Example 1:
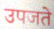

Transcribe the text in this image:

उपजते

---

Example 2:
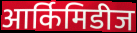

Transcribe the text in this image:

आर्किमिडीज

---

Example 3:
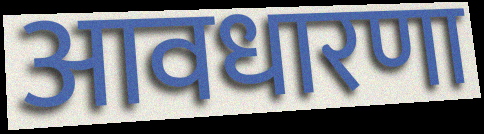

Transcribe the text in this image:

आवधारणा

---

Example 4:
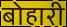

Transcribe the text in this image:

बोहारी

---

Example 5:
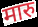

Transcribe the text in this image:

मारु